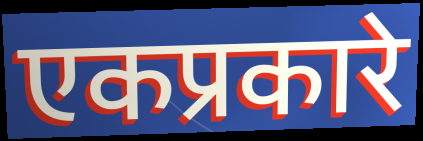
एकप्रकारे